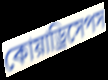
কোয়াড্রিসেপস